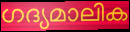
ഗദ്യമാലിക